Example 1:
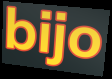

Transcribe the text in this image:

bijo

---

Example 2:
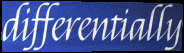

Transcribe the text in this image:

differentially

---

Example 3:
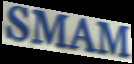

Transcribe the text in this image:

SMAM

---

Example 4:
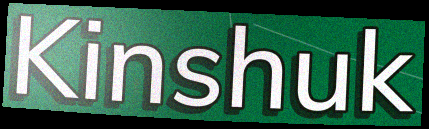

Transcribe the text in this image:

Kinshuk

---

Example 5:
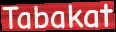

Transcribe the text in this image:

Tabakat